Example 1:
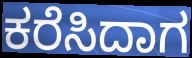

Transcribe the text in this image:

ಕರೆಸಿದಾಗ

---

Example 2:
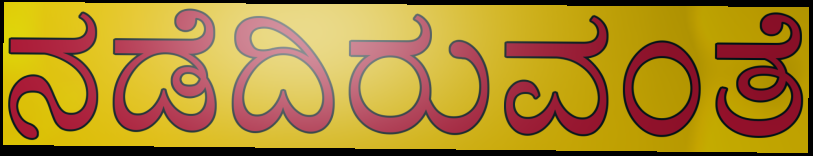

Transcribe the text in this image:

ನಡೆದಿರುವಂತೆ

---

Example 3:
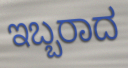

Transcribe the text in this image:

ಇಬ್ಬರಾದ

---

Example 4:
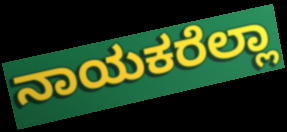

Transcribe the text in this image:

ನಾಯಕರೆಲ್ಲಾ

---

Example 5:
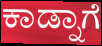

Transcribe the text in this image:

ಕಾಡ್ನಾಗೆ